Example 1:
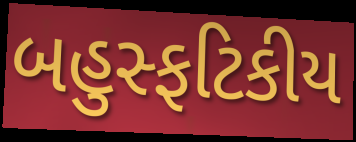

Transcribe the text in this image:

બહુસ્ફટિકીય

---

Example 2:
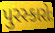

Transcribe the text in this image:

પુરસ્કારોઃ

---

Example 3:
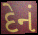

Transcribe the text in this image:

દેનં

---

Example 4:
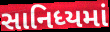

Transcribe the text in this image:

સાનિધ્યમાં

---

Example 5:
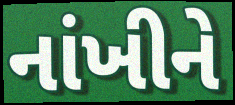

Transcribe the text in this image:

નાંખીને